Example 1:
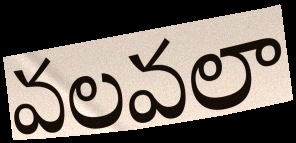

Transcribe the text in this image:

వలవలా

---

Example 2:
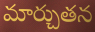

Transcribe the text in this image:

మార్చుతన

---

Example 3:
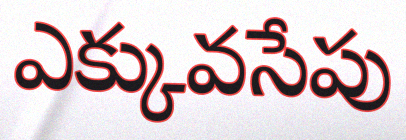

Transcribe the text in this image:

ఎక్కువసేపు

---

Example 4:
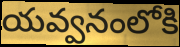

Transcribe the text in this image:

యవ్వనంలోకి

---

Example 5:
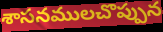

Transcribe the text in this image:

శాసనములచొప్పున